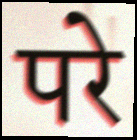
परे